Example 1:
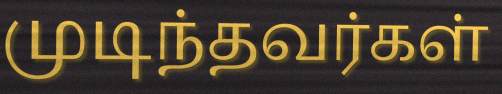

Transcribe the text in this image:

முடிந்தவர்கள்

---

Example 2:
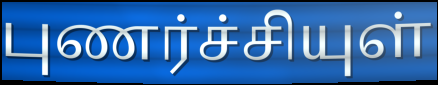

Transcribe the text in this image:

புணர்ச்சியுள்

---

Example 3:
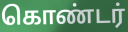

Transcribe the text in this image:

கொண்டர்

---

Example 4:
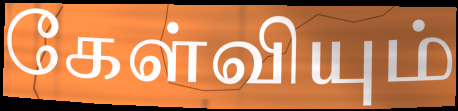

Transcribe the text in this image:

கேள்வியும்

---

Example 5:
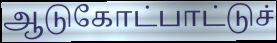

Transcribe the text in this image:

ஆடுகோட்பாட்டுச்